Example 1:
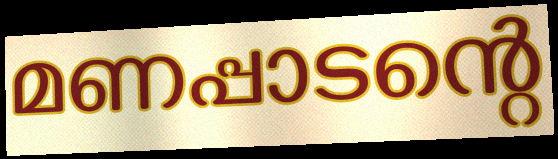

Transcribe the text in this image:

മണപ്പാടന്റെ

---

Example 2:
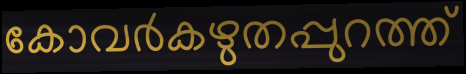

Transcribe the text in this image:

കോവർകഴുതപ്പുറത്ത്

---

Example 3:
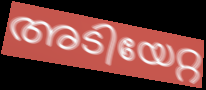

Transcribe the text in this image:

അടിയേറ്റ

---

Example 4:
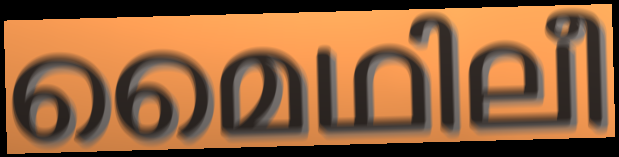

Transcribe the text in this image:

മൈഥിലീ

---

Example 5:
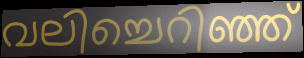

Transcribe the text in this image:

വലിച്ചെറിഞ്ഞ്